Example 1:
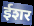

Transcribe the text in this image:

ईशर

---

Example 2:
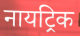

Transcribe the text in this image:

नायट्रिक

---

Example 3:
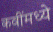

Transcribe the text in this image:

कवींमध्ये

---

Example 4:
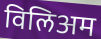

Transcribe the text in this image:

विलिअम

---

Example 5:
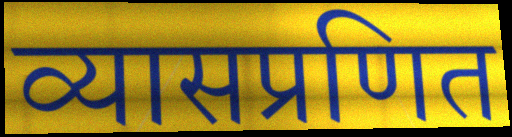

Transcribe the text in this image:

व्यासप्रणित